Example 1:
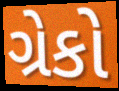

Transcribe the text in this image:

ગ્રેકો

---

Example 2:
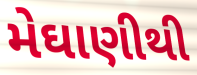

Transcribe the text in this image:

મેઘાણીથી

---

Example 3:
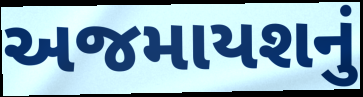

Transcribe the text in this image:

અજમાયશનું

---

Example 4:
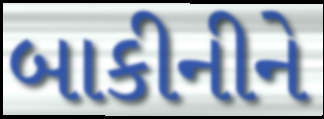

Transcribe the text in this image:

બાકીનીને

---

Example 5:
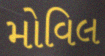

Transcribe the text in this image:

મોવિલ